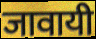
जावायी